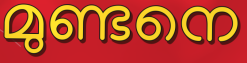
മുണ്ടനെ